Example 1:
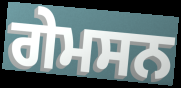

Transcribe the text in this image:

ਗੇਮਸਨ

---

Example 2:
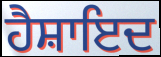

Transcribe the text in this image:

ਹੈਸ਼ਾਇਦ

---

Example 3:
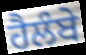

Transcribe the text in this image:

ਹੈਲੰਬੇ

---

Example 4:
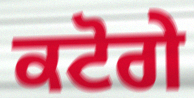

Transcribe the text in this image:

ਕਟੋਗੇ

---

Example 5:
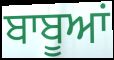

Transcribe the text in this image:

ਬਾਬੂਆਂ